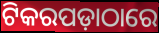
ଟିକରପଡ଼ାଠାରେ